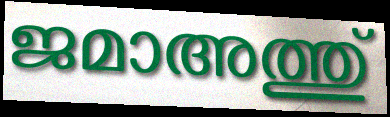
ജമാഅത്തു്